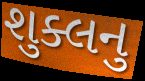
શુક્લનુ